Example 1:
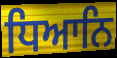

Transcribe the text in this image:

ਧਿਆਨਿ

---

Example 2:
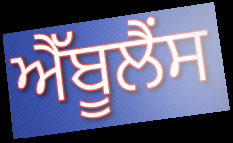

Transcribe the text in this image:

ਐੱਬੂਲੈਂਸ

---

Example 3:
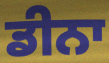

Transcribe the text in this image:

ਡੀਨਾ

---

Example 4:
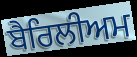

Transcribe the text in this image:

ਬੈਰਿਲੀਅਮ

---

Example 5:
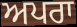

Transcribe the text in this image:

ਅਪਰਾ